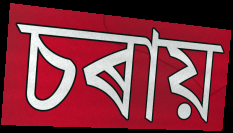
চৰায়